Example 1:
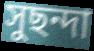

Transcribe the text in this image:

সুছন্দা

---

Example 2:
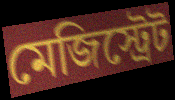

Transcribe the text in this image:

মেজিস্ট্রেট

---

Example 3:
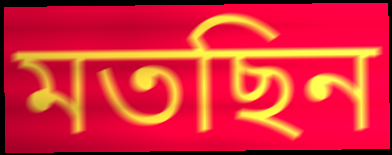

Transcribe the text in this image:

মতছিন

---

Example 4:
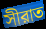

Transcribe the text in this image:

সীরাত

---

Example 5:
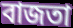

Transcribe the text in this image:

বাজতা